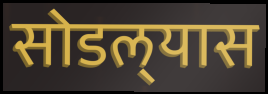
सोडल्यास